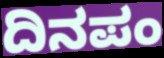
ದಿನಪಂ